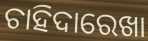
ଚାହିଦାରେଖା